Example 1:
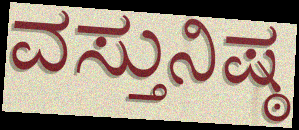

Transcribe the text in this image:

ವಸ್ತುನಿಷ್ಠ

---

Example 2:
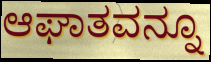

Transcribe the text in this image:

ಆಘಾತವನ್ನೂ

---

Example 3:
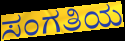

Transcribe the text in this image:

ಸಂಗತಿಯ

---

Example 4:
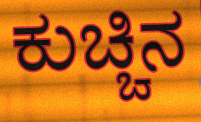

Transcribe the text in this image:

ಕುಚ್ಚಿನ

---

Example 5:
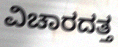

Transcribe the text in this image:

ವಿಚಾರದತ್ತ